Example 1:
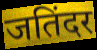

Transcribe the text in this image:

जतिंदर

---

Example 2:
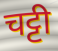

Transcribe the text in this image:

चट्टी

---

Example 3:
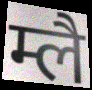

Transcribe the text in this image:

म्लै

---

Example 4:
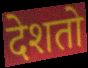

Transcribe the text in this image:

देशतो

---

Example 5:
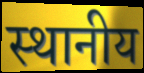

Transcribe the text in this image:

स्थानीय